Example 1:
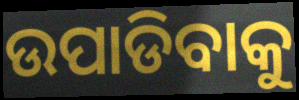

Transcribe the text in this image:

ଉପାଡିବାକୁ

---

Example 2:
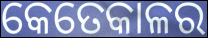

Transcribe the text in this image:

କେତେକାଳର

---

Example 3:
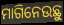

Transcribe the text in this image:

ମାଗିନେଉଛୁ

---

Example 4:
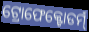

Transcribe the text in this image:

ଟ୍ରୋଫେକ୍ଟୋଡର୍ମ୍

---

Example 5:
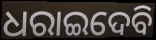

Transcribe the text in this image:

ଧରାଇଦେବି